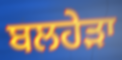
ਬਲਹੇੜਾ